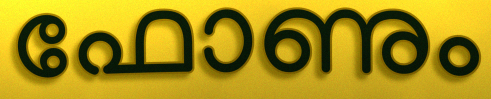
ഫോണും